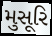
મુસૂરિ